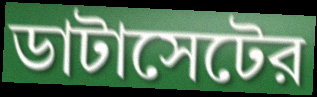
ডাটাসেটের